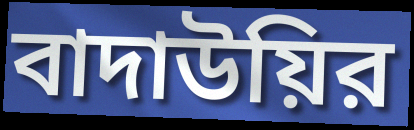
বাদাউয়ির